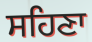
ਸਹਿਣਾ